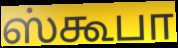
ஸ்கூபா